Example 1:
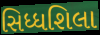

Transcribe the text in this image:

સિધ્ધશિલા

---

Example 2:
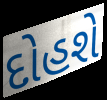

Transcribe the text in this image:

દોહશે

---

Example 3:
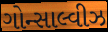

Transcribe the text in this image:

ગોન્સાલ્વીઝ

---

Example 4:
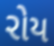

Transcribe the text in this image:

રોય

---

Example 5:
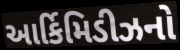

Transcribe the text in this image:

આર્કિમિડીઝનો